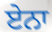
ਏਨਾ